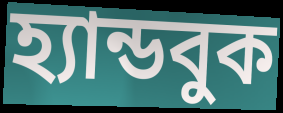
হ্যান্ডবুক